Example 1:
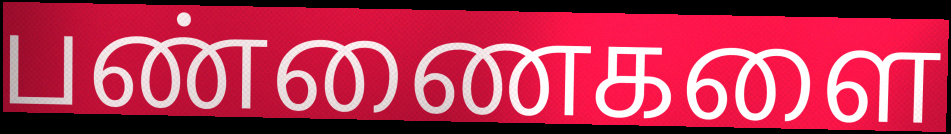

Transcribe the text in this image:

பண்ணைகளை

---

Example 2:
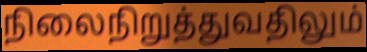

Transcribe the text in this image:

நிலைநிறுத்துவதிலும்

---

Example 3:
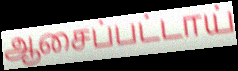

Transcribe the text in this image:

ஆசைப்பட்டாய்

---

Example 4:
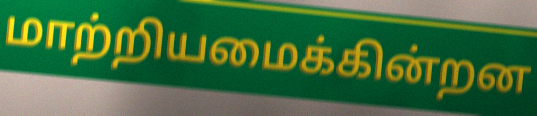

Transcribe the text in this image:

மாற்றியமைக்கின்றன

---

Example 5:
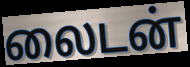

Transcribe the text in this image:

லைடன்